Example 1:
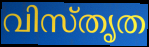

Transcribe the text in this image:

വിസ്തൃത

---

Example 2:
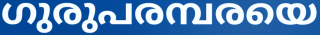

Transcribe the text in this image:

ഗുരുപരമ്പരയെ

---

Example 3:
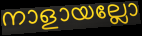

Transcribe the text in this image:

നാളായല്ലോ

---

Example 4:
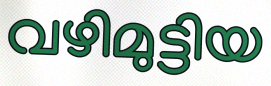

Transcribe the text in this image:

വഴിമുട്ടിയ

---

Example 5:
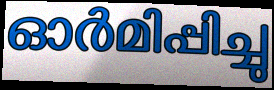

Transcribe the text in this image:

ഓർമിപ്പിച്ചു